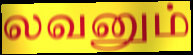
லவனும்